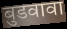
बुडवावा